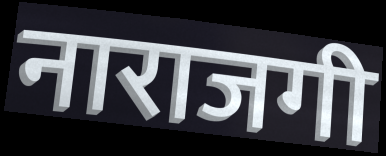
नाराजगी